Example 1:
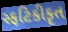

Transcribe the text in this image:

સ્ફટિકીકૃત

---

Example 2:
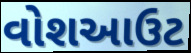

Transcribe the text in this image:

વોશઆઉટ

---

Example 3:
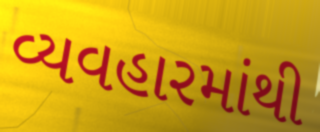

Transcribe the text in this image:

વ્યવહારમાંથી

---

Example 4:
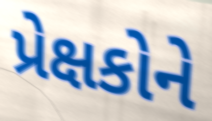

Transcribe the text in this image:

પ્રેક્ષકોને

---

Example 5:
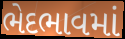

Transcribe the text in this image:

ભેદભાવમાં